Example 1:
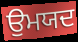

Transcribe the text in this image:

ਉਮਯਦ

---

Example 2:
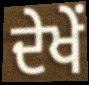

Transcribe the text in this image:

ਦੇਖੇਂ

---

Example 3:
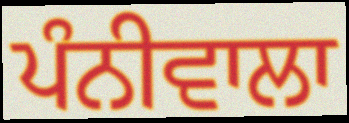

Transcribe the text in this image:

ਪੰਨੀਵਾਲਾ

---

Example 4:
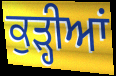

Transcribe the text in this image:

ਕੁੜ੍ਹੀਆਂ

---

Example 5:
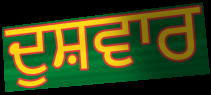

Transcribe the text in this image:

ਦੁਸ਼ਵਾਰ